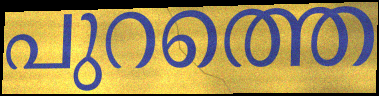
പുറത്തെ